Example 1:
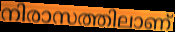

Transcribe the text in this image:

നിരാസത്തിലാണ്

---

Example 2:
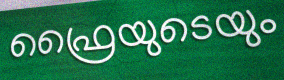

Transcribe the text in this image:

ഫ്രൈയുടെയും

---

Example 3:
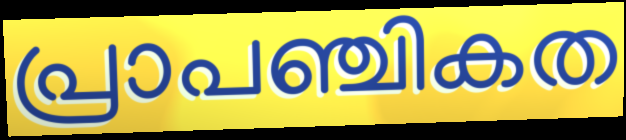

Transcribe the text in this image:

പ്രാപഞ്ചികത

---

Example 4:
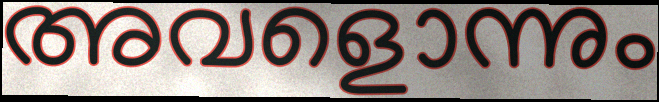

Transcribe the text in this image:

അവളൊന്നും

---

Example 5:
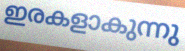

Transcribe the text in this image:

ഇരകളാകുന്നു